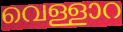
വെള്ളാറ